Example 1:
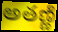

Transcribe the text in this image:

అతణ్ణి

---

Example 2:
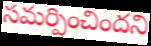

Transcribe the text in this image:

సమర్పించిందని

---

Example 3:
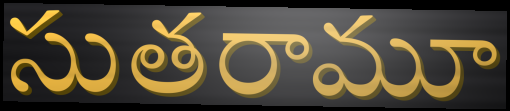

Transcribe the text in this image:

సుతరామూ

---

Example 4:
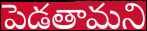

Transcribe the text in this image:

పెడతామని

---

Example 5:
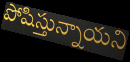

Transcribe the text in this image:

పోషిస్తున్నాయని